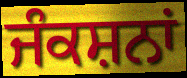
ਜੰਕਸ਼ਨਾਂ